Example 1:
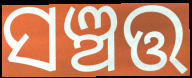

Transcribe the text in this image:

ସଞ୍ଚତ୍ତ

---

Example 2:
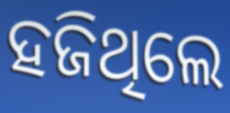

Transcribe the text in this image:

ହଜିଥିଲେ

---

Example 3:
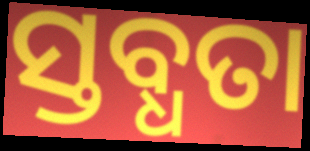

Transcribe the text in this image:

ସ୍ତବ୍ଧତା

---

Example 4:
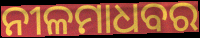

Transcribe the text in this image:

ନୀଳମାଧବର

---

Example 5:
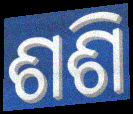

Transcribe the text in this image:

ଶଶି